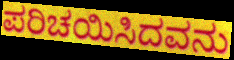
ಪರಿಚಯಿಸಿದವನು